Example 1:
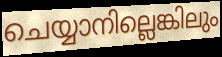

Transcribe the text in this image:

ചെയ്യാനില്ലെങ്കിലും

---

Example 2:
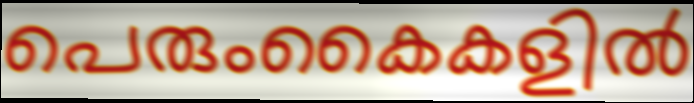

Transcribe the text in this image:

പെരുംകൈകളിൽ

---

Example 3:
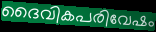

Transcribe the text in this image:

ദൈവികപരിവേഷം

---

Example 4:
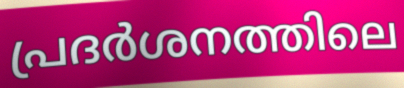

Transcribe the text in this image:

പ്രദർശനത്തിലെ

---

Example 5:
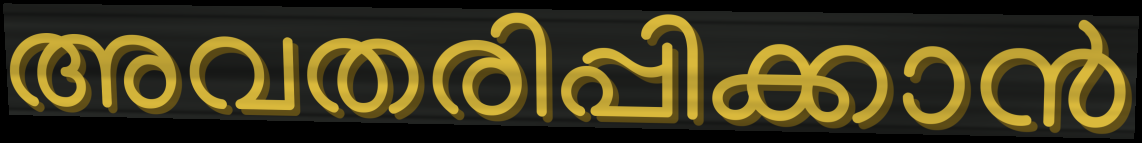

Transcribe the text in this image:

അവതരിപ്പിക്കാൻ